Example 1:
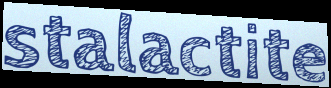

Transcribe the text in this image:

stalactite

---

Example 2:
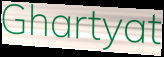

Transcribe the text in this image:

Ghartyat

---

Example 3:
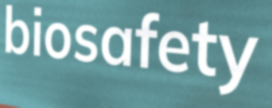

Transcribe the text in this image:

biosafety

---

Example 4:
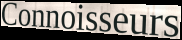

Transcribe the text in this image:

Connoisseurs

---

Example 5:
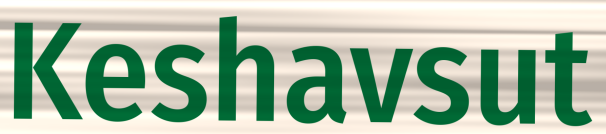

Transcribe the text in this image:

Keshavsut